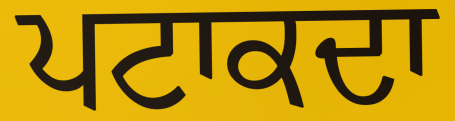
ਪਟਾਕਦਾ